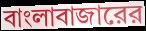
বাংলাবাজারের